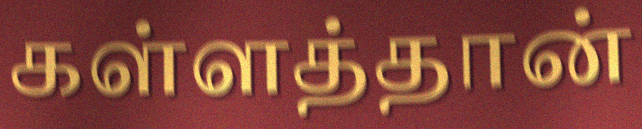
கள்ளத்தான்